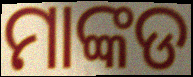
ମାଙ୍କଡ